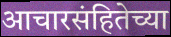
आचारसंहितेच्या